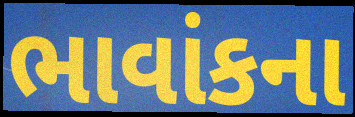
ભાવાંકના